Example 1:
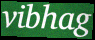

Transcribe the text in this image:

vibhag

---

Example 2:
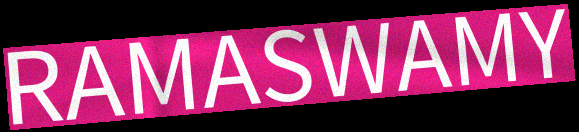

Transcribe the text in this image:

RAMASWAMY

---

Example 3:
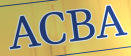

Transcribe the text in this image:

ACBA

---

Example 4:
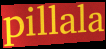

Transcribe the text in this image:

pillala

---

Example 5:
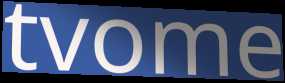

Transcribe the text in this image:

tvome